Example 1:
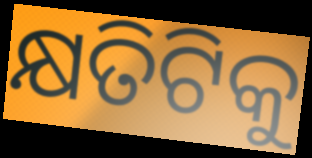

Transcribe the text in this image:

କ୍ଷତିଟିକୁ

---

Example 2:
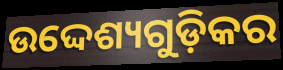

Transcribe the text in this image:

ଉଦ୍ଦେଶ୍ୟଗୁଡ଼ିକର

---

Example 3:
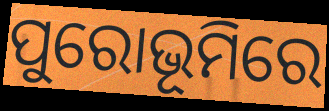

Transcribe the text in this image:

ପୁରୋଭୂମିରେ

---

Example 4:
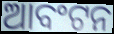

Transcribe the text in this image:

ଆବଂଟନ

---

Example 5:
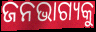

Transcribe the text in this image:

ଜନଭାଗ୍ୟକୁ